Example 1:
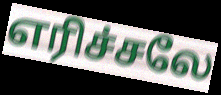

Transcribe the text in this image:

எரிச்சலே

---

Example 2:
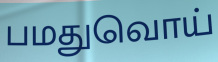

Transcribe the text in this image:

பமதுவொய்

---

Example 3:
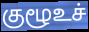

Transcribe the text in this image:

குழூஉச்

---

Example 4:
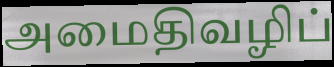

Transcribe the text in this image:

அமைதிவழிப்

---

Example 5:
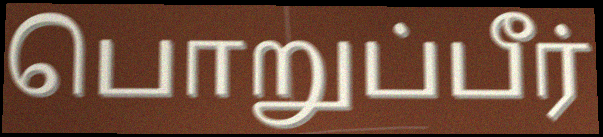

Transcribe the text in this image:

பொறுப்பீர்